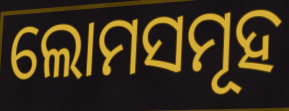
ଲୋମସମୂହ